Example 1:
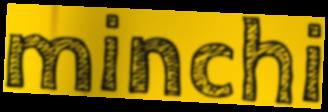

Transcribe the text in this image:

minchi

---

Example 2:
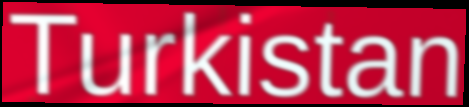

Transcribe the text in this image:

Turkistan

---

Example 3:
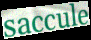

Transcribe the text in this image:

saccule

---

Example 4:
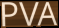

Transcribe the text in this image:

PVA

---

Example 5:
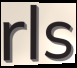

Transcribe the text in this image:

rls